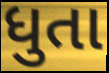
ધુતા